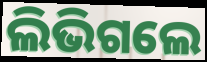
ଲିଭିଗଲେ